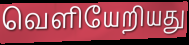
வெளியேறியது